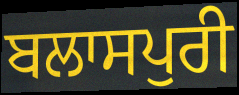
ਬਲਾਸਪੁਰੀ